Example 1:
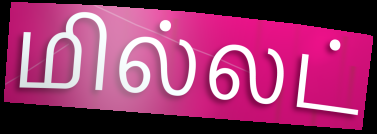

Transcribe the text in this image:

மில்லட்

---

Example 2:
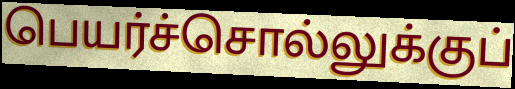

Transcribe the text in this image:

பெயர்ச்சொல்லுக்குப்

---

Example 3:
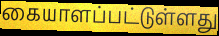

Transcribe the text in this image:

கையாளப்பட்டுள்ளது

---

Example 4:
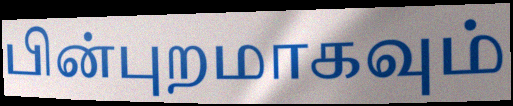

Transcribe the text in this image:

பின்புறமாகவும்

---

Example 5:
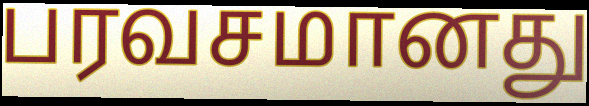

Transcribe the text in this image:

பரவசமானது